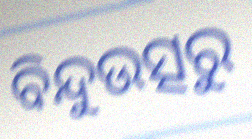
ବିନ୍ଦୁଉତ୍ସରୁ